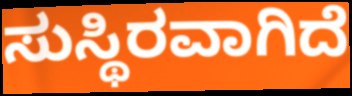
ಸುಸ್ಥಿರವಾಗಿದೆ